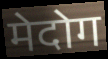
मेदोग